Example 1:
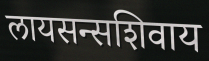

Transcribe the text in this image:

लायसन्सशिवाय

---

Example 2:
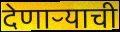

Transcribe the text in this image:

देणाऱ्याची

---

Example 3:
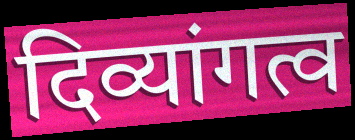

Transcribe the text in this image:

दिव्यांगत्व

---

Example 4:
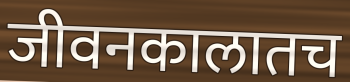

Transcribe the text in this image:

जीवनकालातच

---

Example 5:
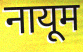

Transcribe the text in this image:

नायूम